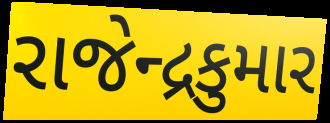
રાજેન્દ્રકુમાર